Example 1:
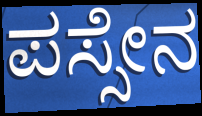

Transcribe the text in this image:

ಪಸ್ಸೇನ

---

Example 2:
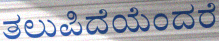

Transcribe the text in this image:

ತಲುಪಿದೆಯೆಂದರೆ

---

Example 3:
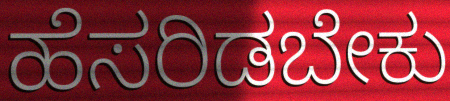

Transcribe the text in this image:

ಹೆಸರಿಡಬೇಕು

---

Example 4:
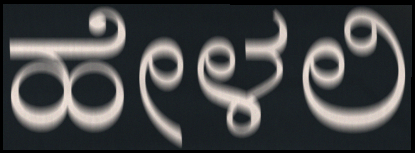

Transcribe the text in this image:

ಹೇಳಲಿ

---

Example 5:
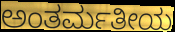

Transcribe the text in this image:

ಅಂತರ್ಮತೀಯ